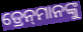
ଡ୍ରେନ୍‌ମାନଙ୍କୁ